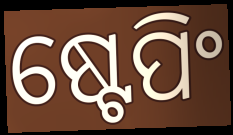
ଷ୍ଟେପିଂ